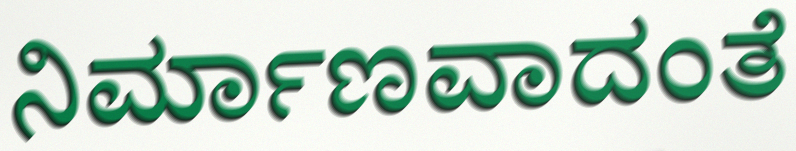
ನಿರ್ಮಾಣವಾದಂತೆ